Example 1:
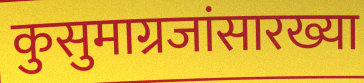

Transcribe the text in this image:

कुसुमाग्रजांसारख्या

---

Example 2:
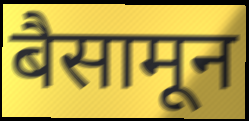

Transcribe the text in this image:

बैसामून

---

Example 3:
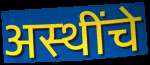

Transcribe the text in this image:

अस्थींचे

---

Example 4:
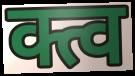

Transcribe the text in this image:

क्त्व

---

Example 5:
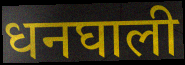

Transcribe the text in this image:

धनघाली